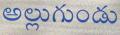
అల్లుగుండు